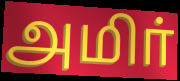
அமிர்